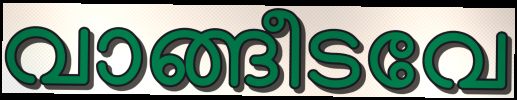
വാങ്ങീടവേ